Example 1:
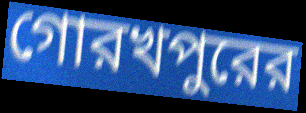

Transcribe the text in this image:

গোরখপুরের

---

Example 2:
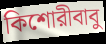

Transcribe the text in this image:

কিশোরীবাবু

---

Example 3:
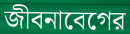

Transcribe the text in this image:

জীবনাবেগের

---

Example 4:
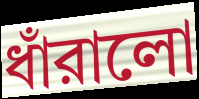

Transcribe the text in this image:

ধাঁরালো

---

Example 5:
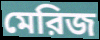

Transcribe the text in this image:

মেরিজ